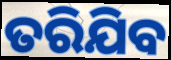
ତରିଯିବ